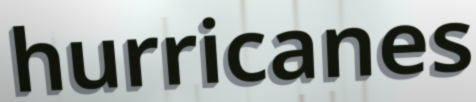
hurricanes